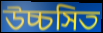
উচ্চসিত